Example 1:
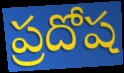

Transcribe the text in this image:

ప్రదోష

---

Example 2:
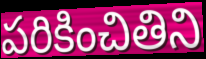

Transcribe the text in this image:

పరికించితిని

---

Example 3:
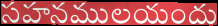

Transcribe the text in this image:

సహనములయందు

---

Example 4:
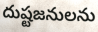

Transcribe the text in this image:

దుష్టజనులను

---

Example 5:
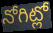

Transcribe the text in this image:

నోగిట్లో